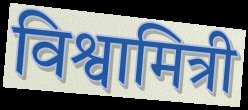
विश्वामित्री